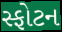
સ્ફોટન